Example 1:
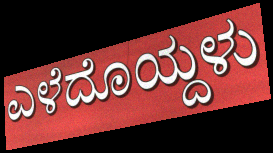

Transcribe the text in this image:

ಎಳೆದೊಯ್ದಳು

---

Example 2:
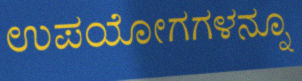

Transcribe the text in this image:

ಉಪಯೋಗಗಳನ್ನೂ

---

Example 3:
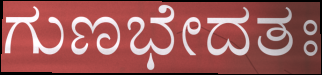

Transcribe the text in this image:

ಗುಣಭೇದತಃ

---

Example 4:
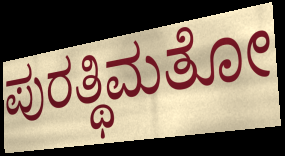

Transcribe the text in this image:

ಪುರತ್ಥಿಮತೋ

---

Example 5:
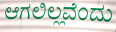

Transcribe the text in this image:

ಆಗಲಿಲ್ಲವೆಂದು